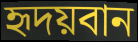
হৃদয়বান